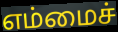
எம்மைச்